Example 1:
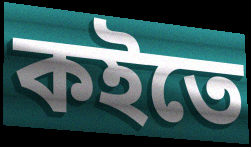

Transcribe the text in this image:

কইতে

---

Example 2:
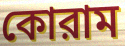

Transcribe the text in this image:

কোরাম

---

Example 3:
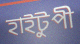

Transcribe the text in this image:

হাইটুপী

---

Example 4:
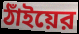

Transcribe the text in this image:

ঠাঁইয়ের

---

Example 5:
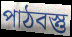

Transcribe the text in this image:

পাঠবস্তু